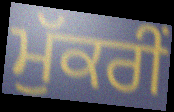
ਮੁੱਕਰੀਂ